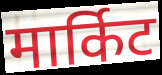
मार्किट